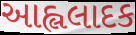
આહ્લલાદક